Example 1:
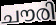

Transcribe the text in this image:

ചൗരി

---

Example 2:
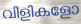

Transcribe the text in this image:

വിളികളോ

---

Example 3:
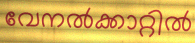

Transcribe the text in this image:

വേനൽക്കാറ്റിൽ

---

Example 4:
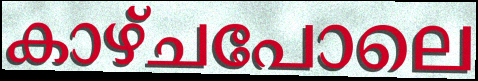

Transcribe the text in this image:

കാഴ്ചപോലെ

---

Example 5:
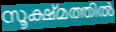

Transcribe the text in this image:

സൂക്ഷ്മത്തിൽ